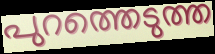
പുറത്തെടുത്ത